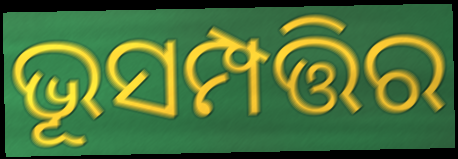
ଭୂସମ୍ପତ୍ତିର